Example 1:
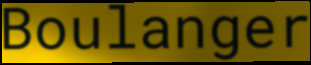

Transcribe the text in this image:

Boulanger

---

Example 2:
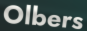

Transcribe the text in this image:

Olbers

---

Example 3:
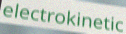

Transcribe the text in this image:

electrokinetic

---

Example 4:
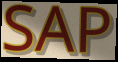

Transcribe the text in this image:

SAP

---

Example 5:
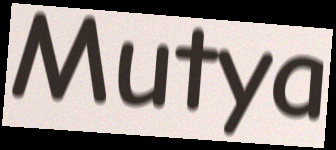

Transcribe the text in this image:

Mutya